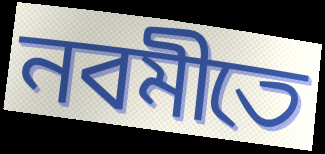
নবমীতে